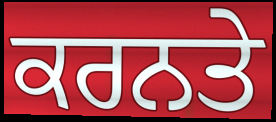
ਕਰਨਤੇ